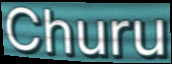
Churu